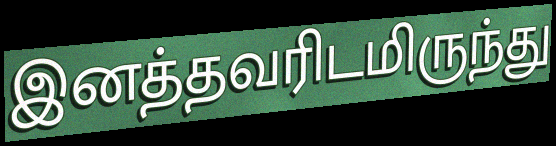
இனத்தவரிடமிருந்து